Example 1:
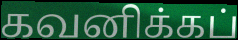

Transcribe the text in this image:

கவனிக்கப்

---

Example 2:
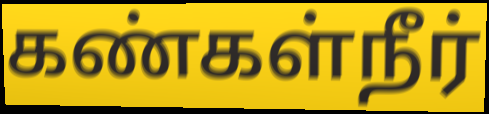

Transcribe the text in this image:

கண்கள்நீர்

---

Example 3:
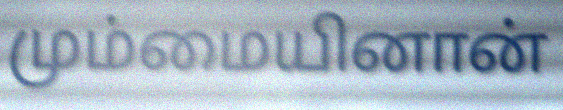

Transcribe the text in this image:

மும்மையினான்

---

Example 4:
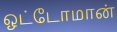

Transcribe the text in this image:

ஒட்டோமான்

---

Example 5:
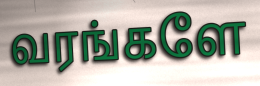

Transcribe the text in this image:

வரங்களே